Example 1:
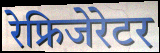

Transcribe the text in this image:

रेफ्रिजेरेटर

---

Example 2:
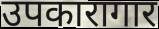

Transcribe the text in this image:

उपकारागार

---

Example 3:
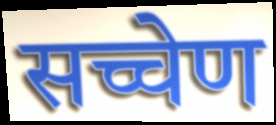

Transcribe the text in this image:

सच्चेण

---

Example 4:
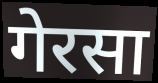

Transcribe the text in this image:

गेरसा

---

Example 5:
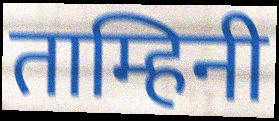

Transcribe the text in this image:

ताम्हिनी